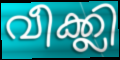
വീക്ക്ലി